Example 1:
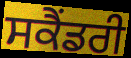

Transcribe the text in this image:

ਸਕੈਂਡਰੀ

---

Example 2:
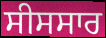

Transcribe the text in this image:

ਸੀਸਸਾਰ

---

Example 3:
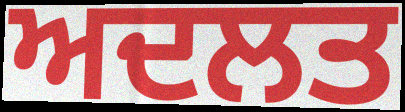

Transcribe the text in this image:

ਅਦਲਤ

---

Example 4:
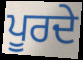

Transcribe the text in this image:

ਪੂਰਦੇ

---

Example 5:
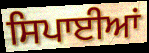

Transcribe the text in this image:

ਸਿਪਾਈਆਂ